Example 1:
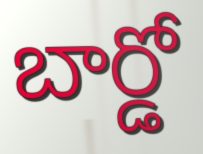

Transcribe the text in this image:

బార్డో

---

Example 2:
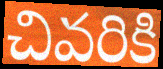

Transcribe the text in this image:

చివరికి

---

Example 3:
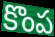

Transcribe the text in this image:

కొంప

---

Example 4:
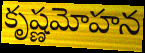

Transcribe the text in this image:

కృష్ణమోహన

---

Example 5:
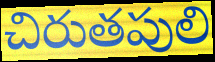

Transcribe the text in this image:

చిరుతపులి